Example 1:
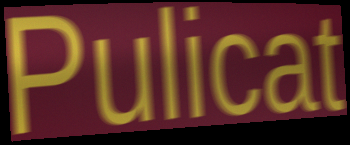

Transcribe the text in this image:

Pulicat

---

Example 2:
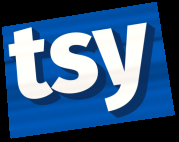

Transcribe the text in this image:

tsy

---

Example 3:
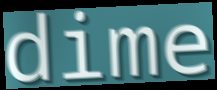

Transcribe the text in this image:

dime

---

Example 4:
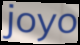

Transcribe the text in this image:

joyo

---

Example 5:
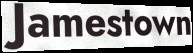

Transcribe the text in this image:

Jamestown